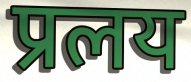
प्रलय